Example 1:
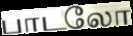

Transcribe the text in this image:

பாடலோ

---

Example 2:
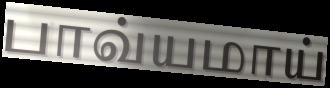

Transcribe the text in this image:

பாவ்யமாய்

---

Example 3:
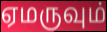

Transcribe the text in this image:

ஏமருவும்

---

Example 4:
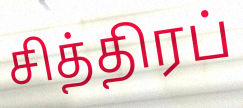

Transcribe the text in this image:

சித்திரப்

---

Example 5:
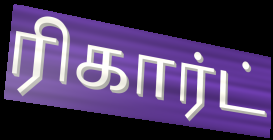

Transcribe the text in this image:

ரிகார்ட்